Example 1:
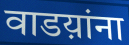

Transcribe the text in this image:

वाडय़ांना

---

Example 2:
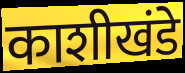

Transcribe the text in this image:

काशीखंडे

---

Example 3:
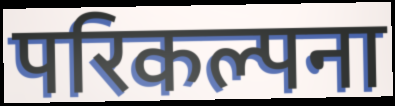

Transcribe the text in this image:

परिकल्पना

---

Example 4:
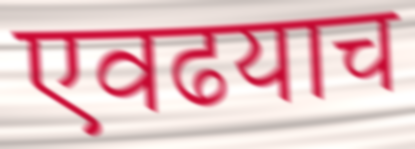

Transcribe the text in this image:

एवढयाच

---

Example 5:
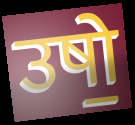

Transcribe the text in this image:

उषो॒